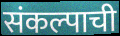
संकल्पाची